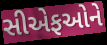
સીએફઓને